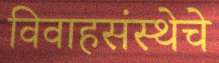
विवाहसंस्थेचे